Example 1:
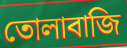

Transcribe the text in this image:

তোলাবাজি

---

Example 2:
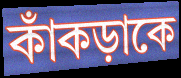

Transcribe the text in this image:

কাঁকড়াকে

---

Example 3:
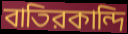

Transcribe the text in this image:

বাতিরকান্দি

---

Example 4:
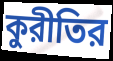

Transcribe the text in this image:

কুরীতির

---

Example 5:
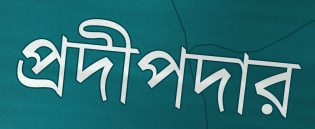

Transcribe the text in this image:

প্রদীপদার